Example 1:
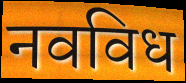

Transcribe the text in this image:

नवविध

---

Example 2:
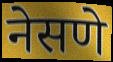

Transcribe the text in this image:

नेसणे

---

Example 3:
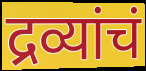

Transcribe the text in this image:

द्रव्यांचं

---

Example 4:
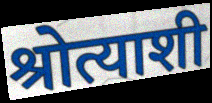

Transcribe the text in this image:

श्रोत्याशी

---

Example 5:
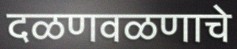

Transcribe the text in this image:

दळणवळणाचे